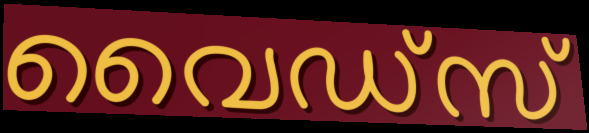
വൈഡ്സ്